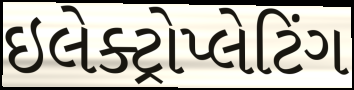
ઇલેક્ટ્રોપ્લેટિંગ